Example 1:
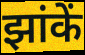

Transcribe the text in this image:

झांकें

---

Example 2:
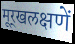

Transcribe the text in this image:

मूर्खलक्षणें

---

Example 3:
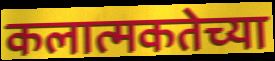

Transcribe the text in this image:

कलात्मकतेच्या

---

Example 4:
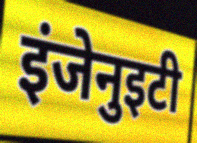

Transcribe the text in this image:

इंजेनुइटी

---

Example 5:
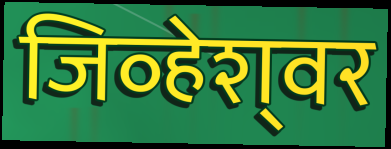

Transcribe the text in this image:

जिव्हेश्वर